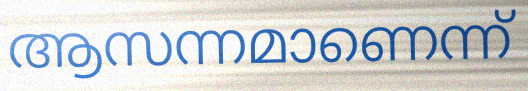
ആസന്നമാണെന്ന്